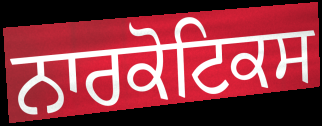
ਨਾਰਕੋਟਿਕਸ